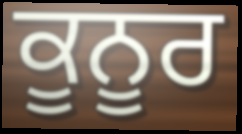
ਕੂਨੂਰ